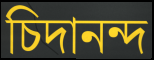
চিদানন্দ